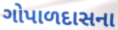
ગોપાળદાસના